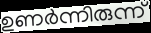
ഉണർന്നിരുന്ന്